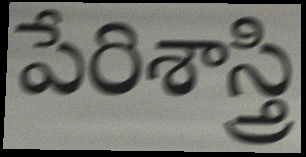
పేరిశాస్త్రి